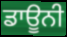
ਡਾਊਨੀ